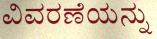
ವಿವರಣೆಯನ್ನು